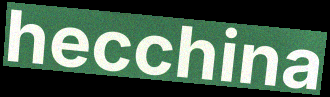
hecchina